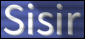
Sisir